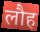
लौह